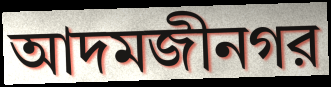
আদমজীনগর